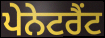
ਪੇਨੇਟਰੈਂਟ